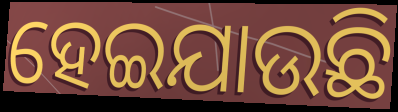
ହେଇଯାଉଛି